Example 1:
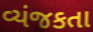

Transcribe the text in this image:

વ્યંજકતા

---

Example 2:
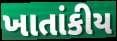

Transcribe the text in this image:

ખાતાંકીય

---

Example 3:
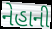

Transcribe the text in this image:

નેહાની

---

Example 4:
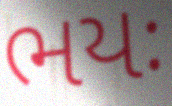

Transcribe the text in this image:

ભયઃ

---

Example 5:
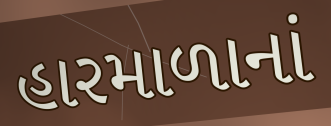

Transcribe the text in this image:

હારમાળાનાં